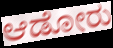
ಆಡೋರು